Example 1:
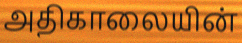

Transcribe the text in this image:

அதிகாலையின்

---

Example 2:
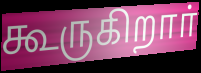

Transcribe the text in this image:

கூருகிறார்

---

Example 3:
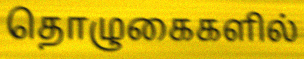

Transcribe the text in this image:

தொழுகைகளில்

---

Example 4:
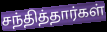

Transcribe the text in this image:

சந்தித்தார்கள்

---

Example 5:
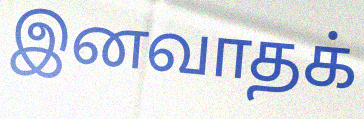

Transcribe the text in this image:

இனவாதக்